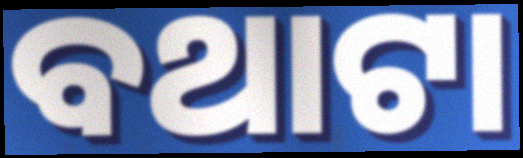
ବଥାଟା